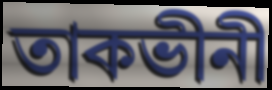
তাকভীনী